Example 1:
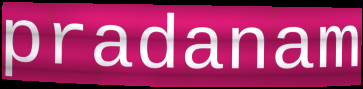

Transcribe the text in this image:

pradanam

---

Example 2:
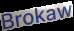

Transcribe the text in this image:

Brokaw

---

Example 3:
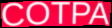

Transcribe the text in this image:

COTPA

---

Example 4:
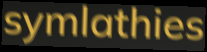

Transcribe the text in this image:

symlathies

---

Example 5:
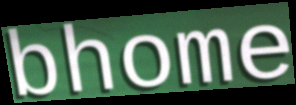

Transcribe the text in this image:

bhome